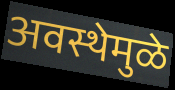
अवस्थेमुळे